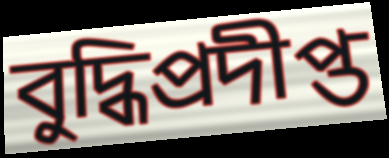
বুদ্ধিপ্রদীপ্ত